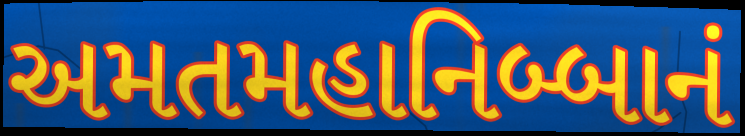
અમતમહાનિબ્બાનં